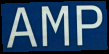
AMP